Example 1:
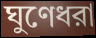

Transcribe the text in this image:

ঘুণেধরা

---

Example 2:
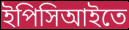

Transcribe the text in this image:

ইপিসিআইতে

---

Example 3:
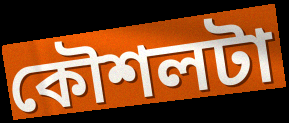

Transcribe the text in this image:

কৌশলটা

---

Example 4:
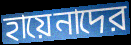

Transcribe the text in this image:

হায়েনাদের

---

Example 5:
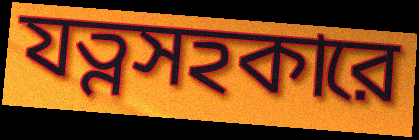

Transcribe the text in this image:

যত্নসহকারে